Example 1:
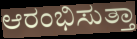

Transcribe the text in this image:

ಆರಂಭಿಸುತ್ತಾ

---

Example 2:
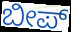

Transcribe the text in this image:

ಬೀಪ್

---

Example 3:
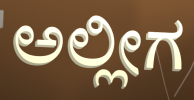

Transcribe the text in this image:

ಅಲ್ಲೀಗ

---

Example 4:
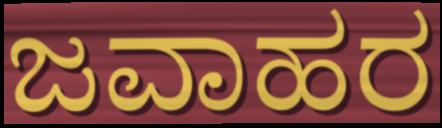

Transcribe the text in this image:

ಜವಾಹರ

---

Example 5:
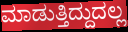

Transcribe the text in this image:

ಮಾಡುತ್ತಿದ್ದುದಲ್ಲ